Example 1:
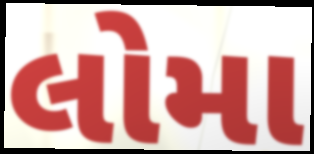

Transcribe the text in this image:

લોમા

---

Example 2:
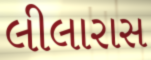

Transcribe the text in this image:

લીલારાસ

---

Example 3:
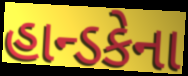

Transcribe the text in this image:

હાન્ડકેના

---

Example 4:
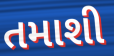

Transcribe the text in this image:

તમાશી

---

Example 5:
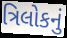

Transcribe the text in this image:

ત્રિલોકનું